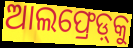
ଆଲଫ୍ରେଡ଼୍‍କୁ